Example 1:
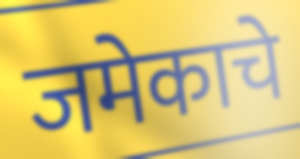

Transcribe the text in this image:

जमेकाचे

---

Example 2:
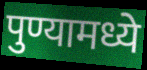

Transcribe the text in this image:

पुण्यामध्ये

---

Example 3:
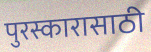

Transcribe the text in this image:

पुरस्कारासाठी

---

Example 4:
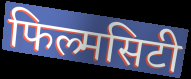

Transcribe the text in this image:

फिल्मसिटी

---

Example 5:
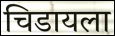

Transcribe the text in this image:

चिडायला